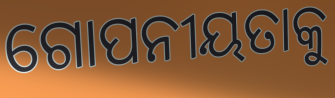
ଗୋପନୀୟତାକୁ